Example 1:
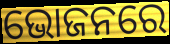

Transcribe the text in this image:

ଭୋଜନରେ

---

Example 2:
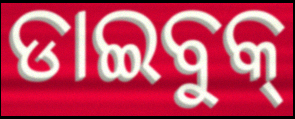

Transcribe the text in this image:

ଡାଇବୁକ୍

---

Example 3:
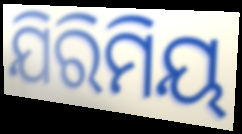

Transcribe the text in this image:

ଯିରିମିୟ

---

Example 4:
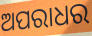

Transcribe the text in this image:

ଅପରାଧର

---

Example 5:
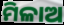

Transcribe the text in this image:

ମିଳାଅ